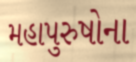
મહાપુરુષોના